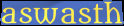
aswasth